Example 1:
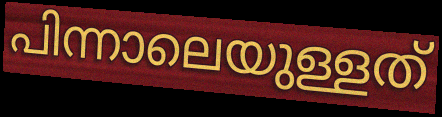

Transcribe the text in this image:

പിന്നാലെയുള്ളത്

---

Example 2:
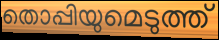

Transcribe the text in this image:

തൊപ്പിയുമെടുത്ത്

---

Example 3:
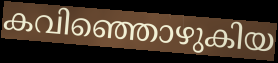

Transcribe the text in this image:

കവിഞ്ഞൊഴുകിയ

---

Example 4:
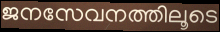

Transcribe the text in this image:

ജനസേവനത്തിലൂടെ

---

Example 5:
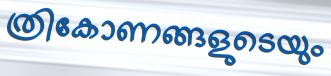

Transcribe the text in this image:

ത്രികോണങ്ങളുടെയും